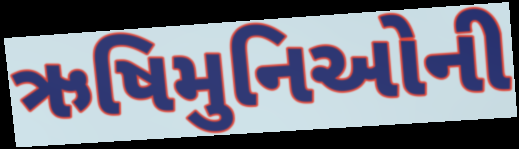
ઋષિમુનિઓની